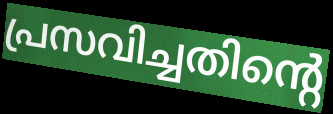
പ്രസവിച്ചതിന്റെ